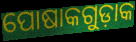
ପୋଷାକଗୁଡ଼ାକ